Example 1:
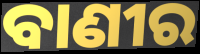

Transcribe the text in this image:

ବାଣୀର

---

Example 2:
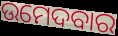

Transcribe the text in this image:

ଉମେଦବାର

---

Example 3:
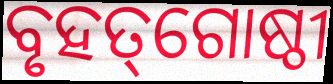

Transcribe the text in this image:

ବୃହତ୍‌ଗୋଷ୍ଠୀ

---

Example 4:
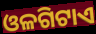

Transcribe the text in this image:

ଓଳଗିଟାଏ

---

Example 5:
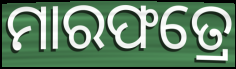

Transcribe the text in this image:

ମାରଫତ୍ରେ